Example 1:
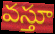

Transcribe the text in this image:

వస్తూ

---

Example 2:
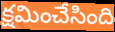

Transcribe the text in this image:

క్షమించేసింది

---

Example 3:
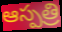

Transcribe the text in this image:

ఆస్పత్రి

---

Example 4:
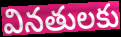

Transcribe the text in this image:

వినతులకు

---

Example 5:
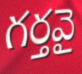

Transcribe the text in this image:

గర్తవై